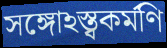
সঙ্গোঽস্ত্বকর্মণি